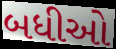
બધીઓ